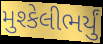
મુશ્કેલીભર્યું